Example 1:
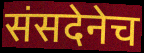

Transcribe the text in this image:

संसदेनेच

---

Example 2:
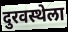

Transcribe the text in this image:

दुरवस्थेला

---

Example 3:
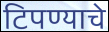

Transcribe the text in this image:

टिपण्याचे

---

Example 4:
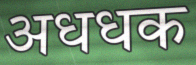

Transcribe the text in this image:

अधधक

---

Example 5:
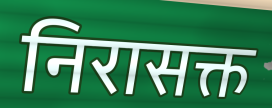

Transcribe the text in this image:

निरासक्त